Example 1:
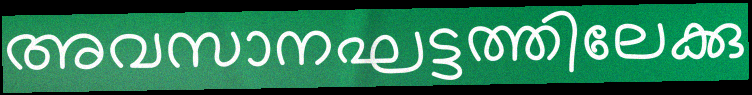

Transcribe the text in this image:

അവസാനഘട്ടത്തിലേക്കു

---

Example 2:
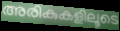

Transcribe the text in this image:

അരികുകളിലൂടെ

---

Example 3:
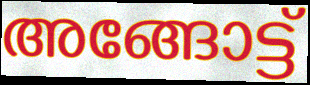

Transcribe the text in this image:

അങ്ങോട്ട്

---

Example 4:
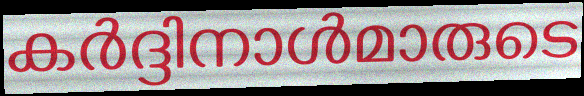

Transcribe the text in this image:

കർദ്ദിനാൾമാരുടെ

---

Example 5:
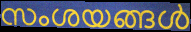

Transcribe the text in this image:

സംശയങ്ങൾ